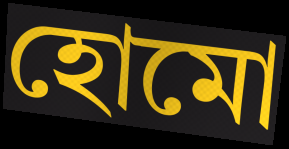
হোমো